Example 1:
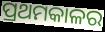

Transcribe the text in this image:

ପ୍ରଥମକାଳର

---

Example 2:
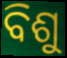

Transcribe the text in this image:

ବିଶୁ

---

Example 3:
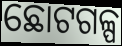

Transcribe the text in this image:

ଛୋଟଗଳ୍ପ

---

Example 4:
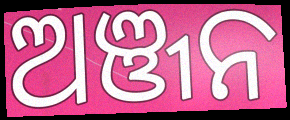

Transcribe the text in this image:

ଅଞ୍ଜନ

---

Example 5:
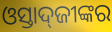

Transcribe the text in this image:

ଓସ୍ତାଦ୍‌ଜୀଙ୍କର